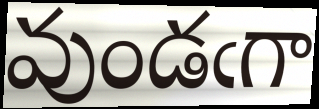
వుండఁగా